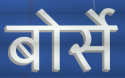
बोर्से